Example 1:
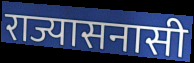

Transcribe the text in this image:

राज्यासनासी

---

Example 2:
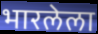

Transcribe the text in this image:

भारलेला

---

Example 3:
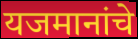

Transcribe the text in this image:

यजमानांचे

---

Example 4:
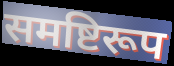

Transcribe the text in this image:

समष्टिरूप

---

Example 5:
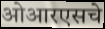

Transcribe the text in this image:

ओआरएसचे